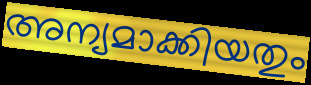
അന്യമാക്കിയതും